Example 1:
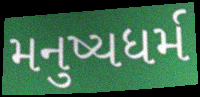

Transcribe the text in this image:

મનુષ્યધર્મ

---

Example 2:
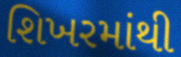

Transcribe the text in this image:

શિખરમાંથી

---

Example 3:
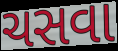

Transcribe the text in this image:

ચસવા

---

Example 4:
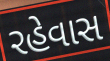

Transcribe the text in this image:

રહેવાસ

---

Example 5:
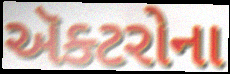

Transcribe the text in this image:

ઍક્ટરોના